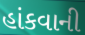
હાંકવાની